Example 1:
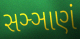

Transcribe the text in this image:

સઞ્ઞાણં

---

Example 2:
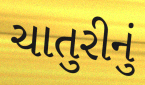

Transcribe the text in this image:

ચાતુરીનું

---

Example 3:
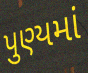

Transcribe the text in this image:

પુણ્યમાં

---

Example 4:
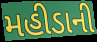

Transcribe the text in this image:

મહીડાની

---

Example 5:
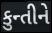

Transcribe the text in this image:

કુન્તીને